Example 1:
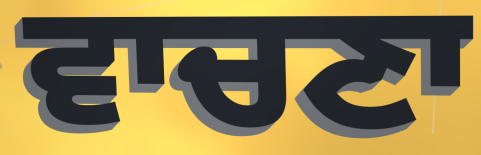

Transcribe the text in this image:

ਵਾਚਣਾ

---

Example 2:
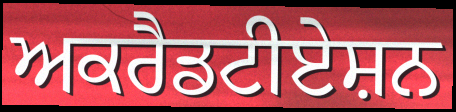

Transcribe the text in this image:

ਅਕਰੈਡਟੀਏਸ਼ਨ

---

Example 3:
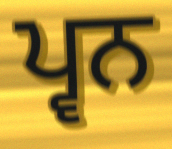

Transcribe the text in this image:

ਪ੍ਵਨ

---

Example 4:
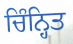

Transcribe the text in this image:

ਚਿੰਨ੍ਹਿਤ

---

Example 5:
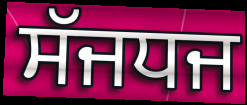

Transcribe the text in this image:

ਸੱਜਧਜ